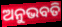
ଅନୁଭବତି